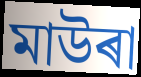
মাউৰা